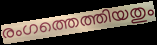
രംഗത്തെത്തിയതും